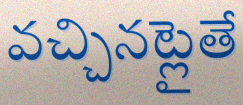
వచ్చినట్లైతే